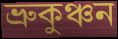
ভ্রুকুঞ্চন